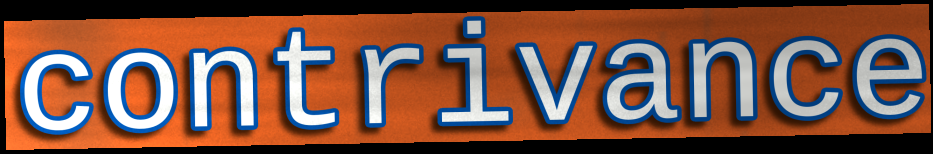
contrivance